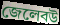
জেলেবউ